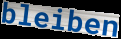
bleiben